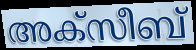
അക്സീബ്